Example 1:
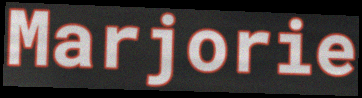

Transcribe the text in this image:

Marjorie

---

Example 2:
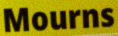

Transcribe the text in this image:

Mourns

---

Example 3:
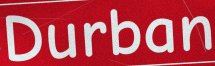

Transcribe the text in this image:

Durban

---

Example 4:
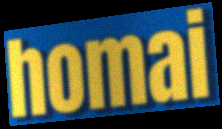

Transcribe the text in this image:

homai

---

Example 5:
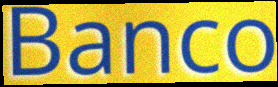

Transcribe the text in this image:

Banco